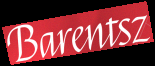
Barentsz